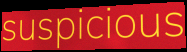
suspicious